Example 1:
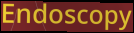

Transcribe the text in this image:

Endoscopy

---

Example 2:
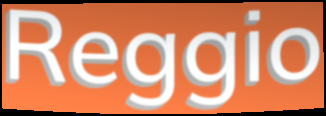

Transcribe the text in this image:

Reggio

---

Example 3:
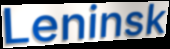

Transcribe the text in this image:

Leninsk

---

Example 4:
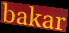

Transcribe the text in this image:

bakar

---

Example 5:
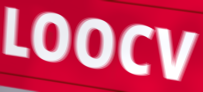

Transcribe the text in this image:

LOOCV